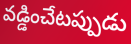
వడ్డించేటప్పుడు